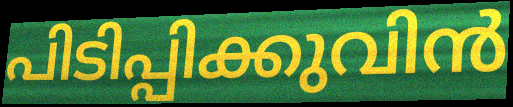
പിടിപ്പിക്കുവിൻ